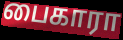
பைகாரா